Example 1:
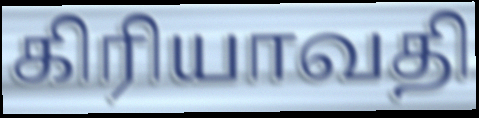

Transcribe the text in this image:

கிரியாவதி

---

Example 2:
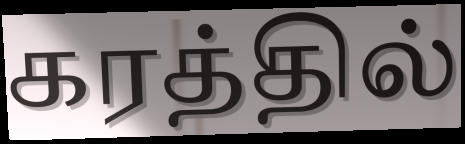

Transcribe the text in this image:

கரத்தில்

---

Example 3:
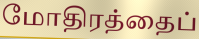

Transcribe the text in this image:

மோதிரத்தைப்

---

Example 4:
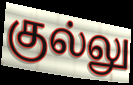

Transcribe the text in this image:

குல்லு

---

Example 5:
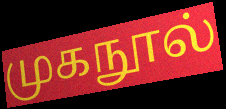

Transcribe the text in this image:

முகநூல்